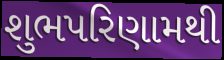
શુભપરિણામથી